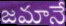
జమానే